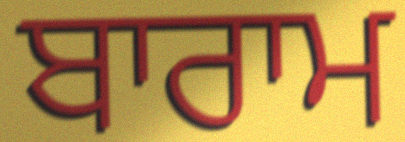
ਬਾਰਾਮ